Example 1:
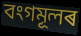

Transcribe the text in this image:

বংগমূলৰ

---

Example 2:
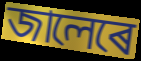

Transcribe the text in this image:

জালেৰে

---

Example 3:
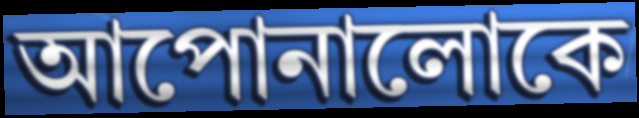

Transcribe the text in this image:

আপোনালোকে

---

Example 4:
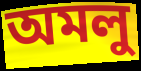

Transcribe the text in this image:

অমলু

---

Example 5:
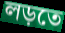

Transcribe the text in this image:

লড়তে